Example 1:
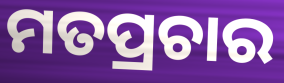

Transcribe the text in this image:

ମତପ୍ରଚାର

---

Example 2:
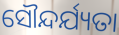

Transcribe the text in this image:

ସୌନ୍ଦର୍ଯ୍ୟତା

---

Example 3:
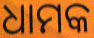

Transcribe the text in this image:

ଧାମକ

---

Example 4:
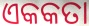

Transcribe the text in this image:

ଏକକତା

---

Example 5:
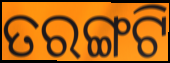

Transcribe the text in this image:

ତରଙ୍ଗଟି